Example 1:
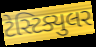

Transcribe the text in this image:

ટેસ્ટિક્યુલર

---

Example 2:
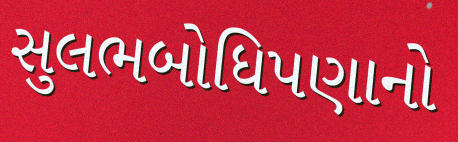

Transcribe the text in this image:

સુલભબોધિપણાનો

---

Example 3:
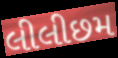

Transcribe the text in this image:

લીલીછમ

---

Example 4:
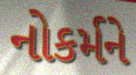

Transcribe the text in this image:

નોકર્મને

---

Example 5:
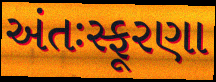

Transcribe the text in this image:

અંતઃસ્ફૂરણા